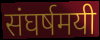
संघर्षमयी